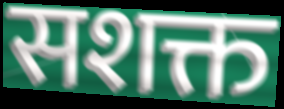
सशक्त